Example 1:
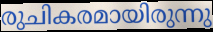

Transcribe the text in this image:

രുചികരമായിരുന്നു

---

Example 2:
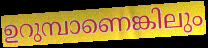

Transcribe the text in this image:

ഉറുമ്പാണെങ്കിലും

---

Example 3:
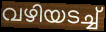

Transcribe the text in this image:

വഴിയടച്ച്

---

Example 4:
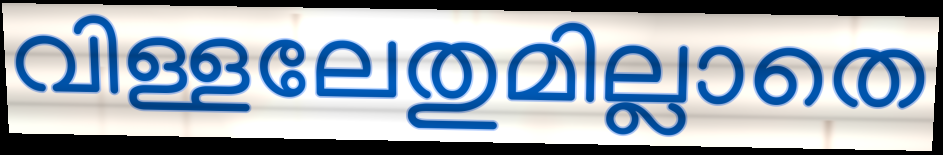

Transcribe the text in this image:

വിള്ളലേതുമില്ലാതെ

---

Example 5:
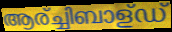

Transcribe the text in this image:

ആര്ച്ചിബാള്ഡ്